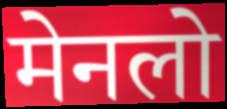
मेनलो